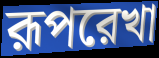
রূপরেখা